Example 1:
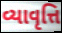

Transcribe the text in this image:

વ્યાવૃત્તિ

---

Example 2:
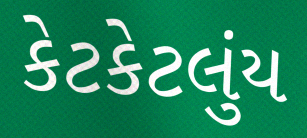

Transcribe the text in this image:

કેટકેટલુંય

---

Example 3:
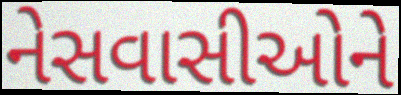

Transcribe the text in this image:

નેસવાસીઓને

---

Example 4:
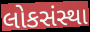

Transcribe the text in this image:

લોકસંસ્થા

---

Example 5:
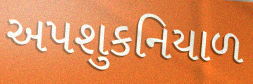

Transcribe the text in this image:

અપશુકનિયાળ